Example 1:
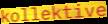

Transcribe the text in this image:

kollektive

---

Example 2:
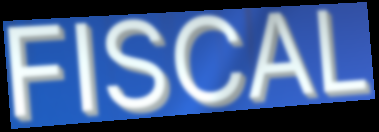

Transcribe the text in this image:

FISCAL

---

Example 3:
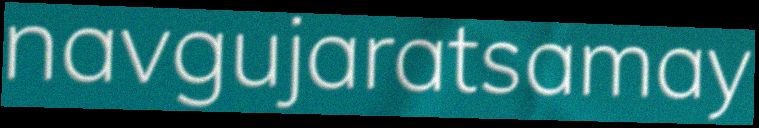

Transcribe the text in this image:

navgujaratsamay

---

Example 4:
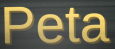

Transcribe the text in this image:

Peta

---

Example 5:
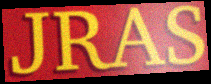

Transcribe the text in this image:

JRAS